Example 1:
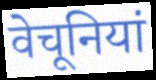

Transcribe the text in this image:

वेचूनियां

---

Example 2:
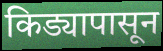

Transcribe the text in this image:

किड्यापासून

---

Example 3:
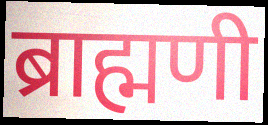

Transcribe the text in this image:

ब्राह्मणी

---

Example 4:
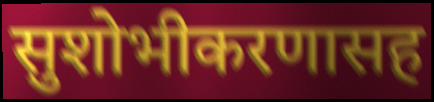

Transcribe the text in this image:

सुशोभीकरणासह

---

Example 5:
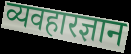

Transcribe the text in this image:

व्यवहारज्ञान